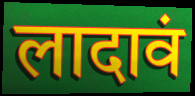
लादावं